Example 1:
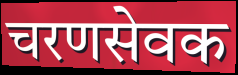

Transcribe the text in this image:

चरणसेवक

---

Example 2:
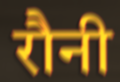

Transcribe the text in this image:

रौनी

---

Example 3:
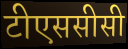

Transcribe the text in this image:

टीएससीसी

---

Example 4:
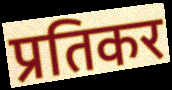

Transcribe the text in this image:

प्रतिकर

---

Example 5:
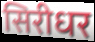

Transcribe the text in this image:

सिरीधर